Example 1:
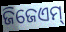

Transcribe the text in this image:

ଜିଜେଏମ୍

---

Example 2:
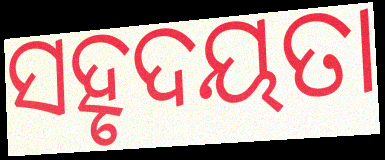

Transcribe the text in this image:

ସହୃଦୟତା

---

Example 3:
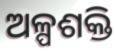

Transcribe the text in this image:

ଅଳ୍ପଶକ୍ତି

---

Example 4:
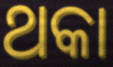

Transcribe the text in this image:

ଥକା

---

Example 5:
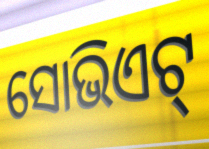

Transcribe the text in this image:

ସୋଭିଏଟ୍